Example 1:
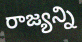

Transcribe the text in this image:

రాజ్యన్ని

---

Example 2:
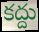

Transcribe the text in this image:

కద్దు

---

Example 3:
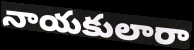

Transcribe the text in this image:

నాయకులారా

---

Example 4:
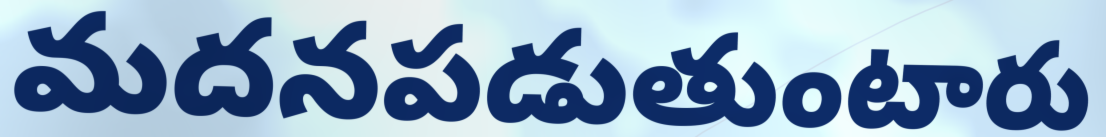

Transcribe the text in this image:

మదనపడుతుంటారు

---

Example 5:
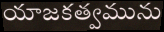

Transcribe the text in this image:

యాజకత్వమును